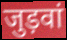
जुड़वां